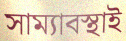
সাম্যাবস্থাই